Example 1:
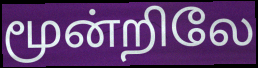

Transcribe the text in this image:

மூன்றிலே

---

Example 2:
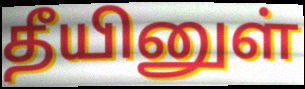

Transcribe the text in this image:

தீயினுள்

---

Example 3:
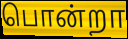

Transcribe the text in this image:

பொன்றா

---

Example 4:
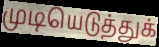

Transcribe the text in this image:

முடியெடுத்துக்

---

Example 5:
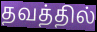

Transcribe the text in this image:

தவத்தில்